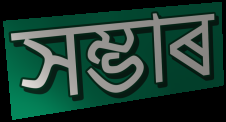
সম্ভাৰ